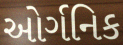
ઓર્ગનિક